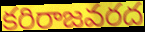
కరిరాజవరద